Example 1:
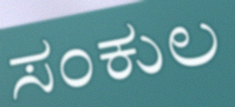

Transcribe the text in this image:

ಸಂಕುಲ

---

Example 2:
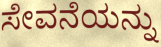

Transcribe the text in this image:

ಸೇವನೆಯನ್ನು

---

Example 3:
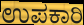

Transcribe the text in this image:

ಉಪಕಾರಿ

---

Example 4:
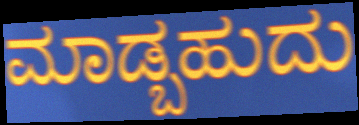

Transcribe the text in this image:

ಮಾಡ್ಬಹುದು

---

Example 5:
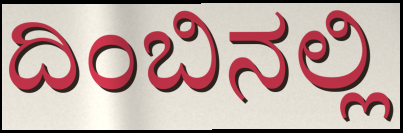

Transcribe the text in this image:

ದಿಂಬಿನಲ್ಲಿ